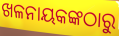
ଖଳନାୟକଙ୍କଠାରୁ